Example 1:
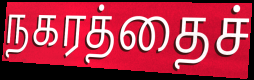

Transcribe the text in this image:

நகரத்தைச்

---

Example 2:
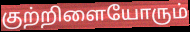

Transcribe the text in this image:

குற்றிளையோரும்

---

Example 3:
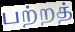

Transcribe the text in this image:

பற்றத்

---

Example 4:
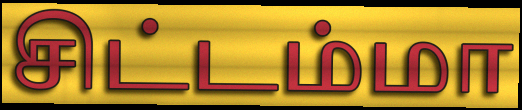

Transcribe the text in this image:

சிட்டம்மா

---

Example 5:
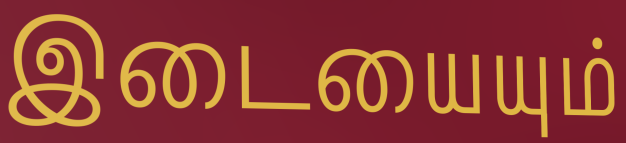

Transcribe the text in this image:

இடையையும்